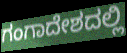
ಗಂಗಾದೇಶದಲ್ಲಿ